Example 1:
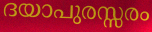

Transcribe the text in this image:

ദയാപുരസ്സരം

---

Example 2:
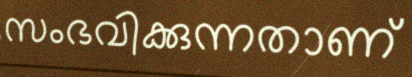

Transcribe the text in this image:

സംഭവിക്കുന്നതാണ്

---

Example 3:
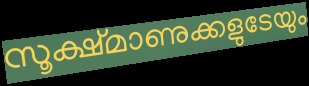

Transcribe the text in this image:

സൂക്ഷ്മാണുക്കളുടേയും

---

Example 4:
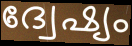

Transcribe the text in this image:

ദ്വേഷ്യം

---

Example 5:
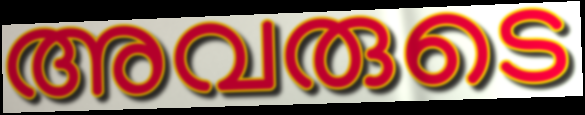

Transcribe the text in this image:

അവരുടെ